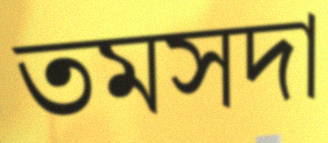
তমসদা